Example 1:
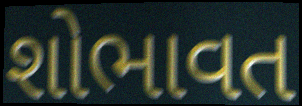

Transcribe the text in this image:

શોભાવત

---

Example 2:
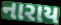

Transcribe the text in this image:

નારાય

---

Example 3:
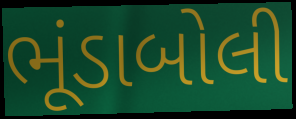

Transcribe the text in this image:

ભૂંડાબોલી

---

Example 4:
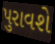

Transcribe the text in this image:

પુરાવશે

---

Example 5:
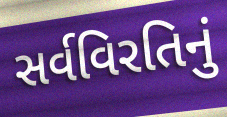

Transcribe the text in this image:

સર્વવિરતિનું